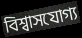
বিশ্বাসযোগ্য